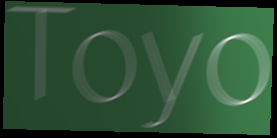
Toyo